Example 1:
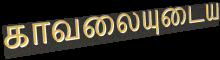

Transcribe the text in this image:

காவலையுடைய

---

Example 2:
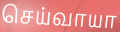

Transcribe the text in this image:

செய்வாயா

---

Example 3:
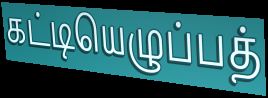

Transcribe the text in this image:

கட்டியெழுப்பத்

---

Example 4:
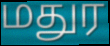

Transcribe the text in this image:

மதுர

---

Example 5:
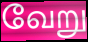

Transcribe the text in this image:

வேறு